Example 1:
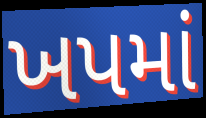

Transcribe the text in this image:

ખપમાં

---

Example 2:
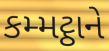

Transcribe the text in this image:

કમ્મટ્ઠાને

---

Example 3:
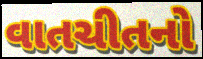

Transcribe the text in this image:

વાતચીતનો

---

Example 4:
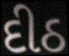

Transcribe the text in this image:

દીઠ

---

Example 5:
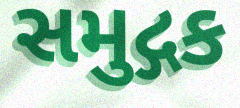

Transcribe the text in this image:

સમુદ્ગક